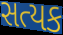
સત્યક